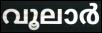
വൂലാർ